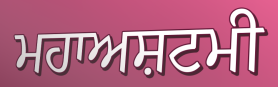
ਮਹਾਅਸ਼ਟਮੀ